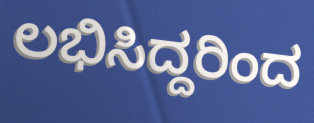
ಲಭಿಸಿದ್ದರಿಂದ